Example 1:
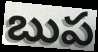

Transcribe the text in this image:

బుప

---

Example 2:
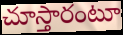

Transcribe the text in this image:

చూస్తారంటూ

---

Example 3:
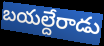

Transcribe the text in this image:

బయల్దేరాడు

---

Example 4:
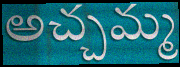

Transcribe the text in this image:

అచ్చమ్మ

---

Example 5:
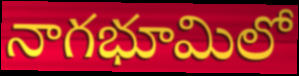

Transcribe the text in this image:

నాగభూమిలో